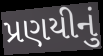
પ્રણયીનું